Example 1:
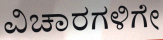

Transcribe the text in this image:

ವಿಚಾರಗಳಿಗೇ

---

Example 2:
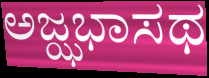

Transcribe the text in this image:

ಅಜ್ಝಭಾಸಥ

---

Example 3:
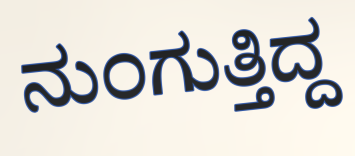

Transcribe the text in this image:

ನುಂಗುತ್ತಿದ್ದ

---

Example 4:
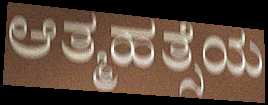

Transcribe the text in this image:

ಆತ್ಮಹತ್ಸೆಯ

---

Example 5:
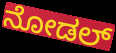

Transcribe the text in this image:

ನೋಡಲ್